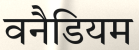
वनैडियम